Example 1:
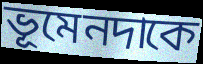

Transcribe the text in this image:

ভূমেনদাকে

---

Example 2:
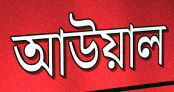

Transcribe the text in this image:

আউয়াল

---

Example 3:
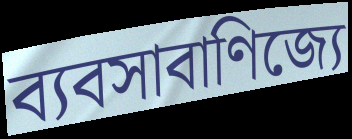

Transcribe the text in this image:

ব্যবসাবাণিজ্যে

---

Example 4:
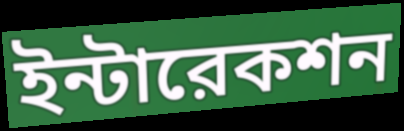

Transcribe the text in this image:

ইন্টারেকশন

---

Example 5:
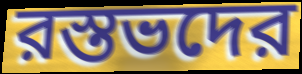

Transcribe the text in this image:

রস্তভদের